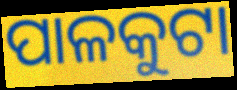
ପାଳକୁଟା